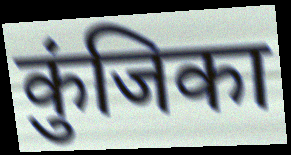
कुंजिका